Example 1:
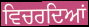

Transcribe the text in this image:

ਵਿਚਰਦਿਆਂ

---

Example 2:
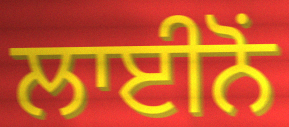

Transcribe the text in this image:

ਲਾਈਨੋਂ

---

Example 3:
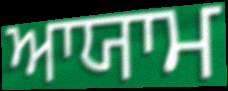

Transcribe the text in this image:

ਆਯਾਮ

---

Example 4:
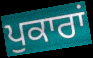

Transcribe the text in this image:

ਪੁਕਾਰਾਂ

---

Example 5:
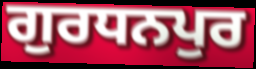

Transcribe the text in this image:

ਗੁਰਧਨਪੁਰ